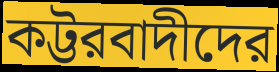
কট্টরবাদীদের